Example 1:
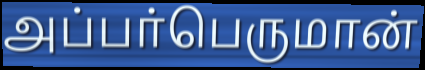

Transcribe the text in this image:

அப்பர்பெருமான்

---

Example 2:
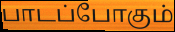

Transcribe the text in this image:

பாடப்போகும்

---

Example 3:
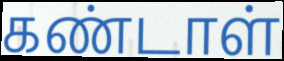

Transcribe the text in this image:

கண்டாள்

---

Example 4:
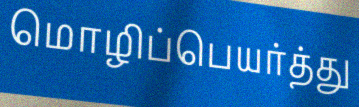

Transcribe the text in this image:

மொழிப்பெயர்த்து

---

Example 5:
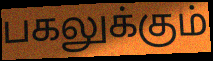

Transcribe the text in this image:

பகலுக்கும்